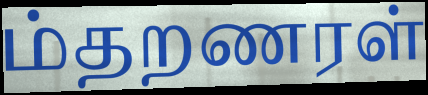
ம்தறணரள்